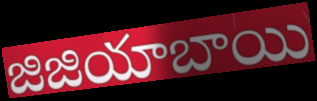
జిజియాబాయి